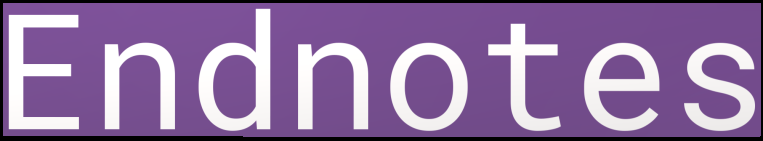
Endnotes